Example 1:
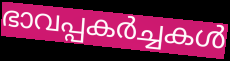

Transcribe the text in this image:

ഭാവപ്പകർച്ചകൾ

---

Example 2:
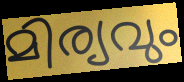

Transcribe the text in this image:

മിര്യവും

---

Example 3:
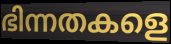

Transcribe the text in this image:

ഭിന്നതകളെ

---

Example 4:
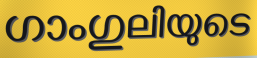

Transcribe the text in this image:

ഗാംഗുലിയുടെ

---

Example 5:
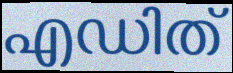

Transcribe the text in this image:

എഡിത്